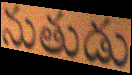
నుతుడు